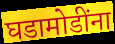
घडामोडींना